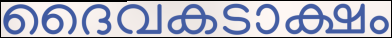
ദൈവകടാക്ഷം